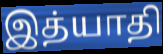
இத்யாதி